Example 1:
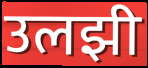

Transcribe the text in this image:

उलझी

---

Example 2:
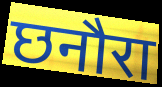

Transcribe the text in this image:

छनौरा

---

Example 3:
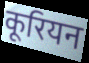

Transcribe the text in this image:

कूरियन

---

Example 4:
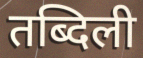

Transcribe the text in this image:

तब्दिली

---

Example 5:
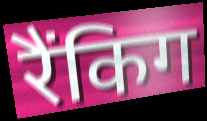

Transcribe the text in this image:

रैंकिग